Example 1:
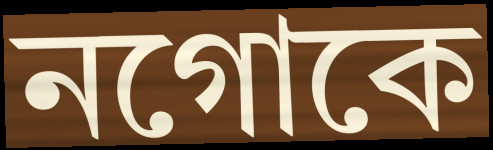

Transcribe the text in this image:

নগোকে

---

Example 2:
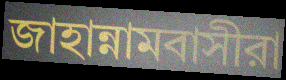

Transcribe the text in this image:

জাহান্নামবাসীরা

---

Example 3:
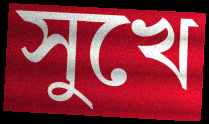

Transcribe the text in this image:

সুখে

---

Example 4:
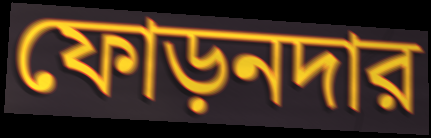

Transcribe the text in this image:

ফোড়নদার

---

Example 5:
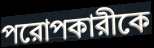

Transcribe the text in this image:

পরোপকারীকে